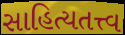
સાહિત્યતત્ત્વ